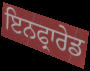
ਇਨਫ੍ਰਾਰੇਡ